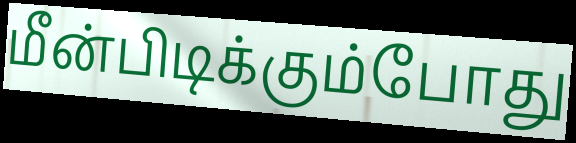
மீன்பிடிக்கும்போது